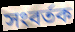
সংবর্তক